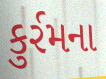
કુર્રમના